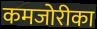
कमजोरीका